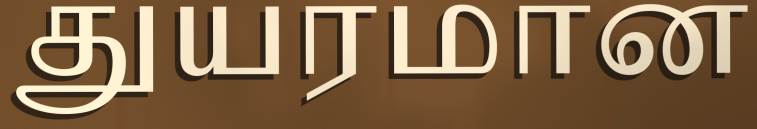
துயரமான